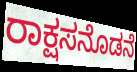
ರಾಕ್ಷಸನೊಡನೆ